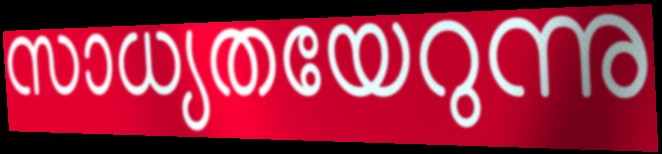
സാധ്യതയേറുന്നു